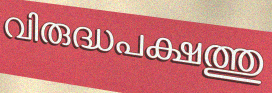
വിരുദ്ധപക്ഷത്തു